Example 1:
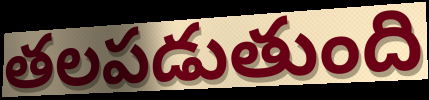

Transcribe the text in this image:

తలపడుతుంది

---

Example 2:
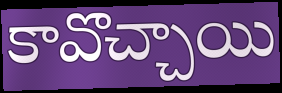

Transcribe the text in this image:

కావొచ్చాయి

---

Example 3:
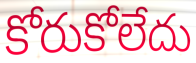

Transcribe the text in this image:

కోరుకోలేదు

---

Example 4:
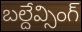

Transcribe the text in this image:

బల్దేవ్సింగ్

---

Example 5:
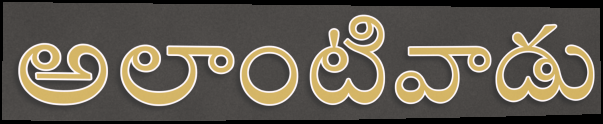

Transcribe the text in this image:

అలాంటివాడు